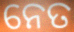
ନେତ